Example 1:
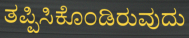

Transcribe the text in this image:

ತಪ್ಪಿಸಿಕೊಂಡಿರುವುದು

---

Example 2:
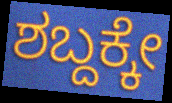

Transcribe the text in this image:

ಶಬ್ದಕ್ಕೇ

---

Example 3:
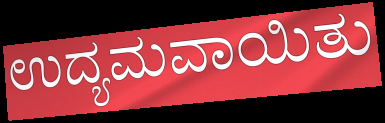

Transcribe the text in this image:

ಉದ್ಯಮವಾಯಿತು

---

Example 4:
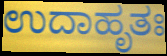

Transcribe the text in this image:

ಉದಾಹೃತಃ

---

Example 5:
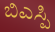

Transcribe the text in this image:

ಬಿಎಸ್ಪಿ